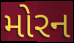
મોરન